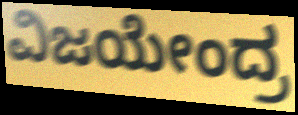
ವಿಜಯೇಂದ್ರ